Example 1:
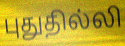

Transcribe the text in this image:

புதுதில்லி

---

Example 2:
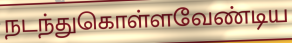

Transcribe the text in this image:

நடந்துகொள்ளவேண்டிய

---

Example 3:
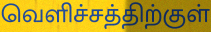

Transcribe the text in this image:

வெளிச்சத்திற்குள்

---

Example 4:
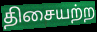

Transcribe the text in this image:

திசையற்ற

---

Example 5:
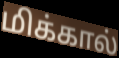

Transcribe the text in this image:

மிக்கால்